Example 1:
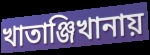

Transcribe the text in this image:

খাতাঞ্জিখানায়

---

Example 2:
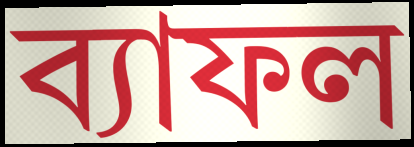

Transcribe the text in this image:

ব্যাফল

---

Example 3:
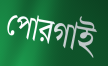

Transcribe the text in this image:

পোরগাই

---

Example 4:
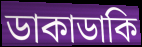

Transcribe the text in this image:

ডাকাডাকি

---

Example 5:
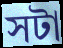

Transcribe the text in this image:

সটা